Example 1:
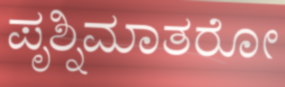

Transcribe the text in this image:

ಪೃಶ್ನಿಮಾತರೋ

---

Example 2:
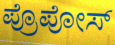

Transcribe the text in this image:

ಪ್ರೊಪೋಸ್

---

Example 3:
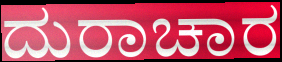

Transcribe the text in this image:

ದುರಾಚಾರ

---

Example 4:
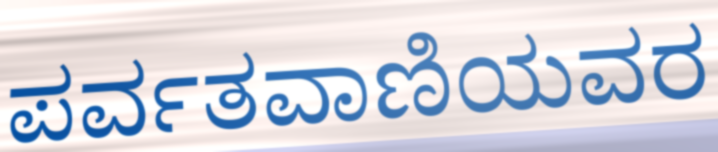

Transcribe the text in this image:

ಪರ್ವತವಾಣಿಯವರ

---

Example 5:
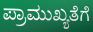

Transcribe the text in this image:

ಪ್ರಾಮುಖ್ಯತೆಗೆ